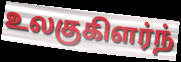
உலகுகிளர்ந்